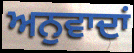
ਅਨੁਵਾਦਾਂ